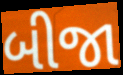
બીજા